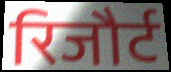
रिजौर्ट